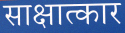
साक्षात्कार